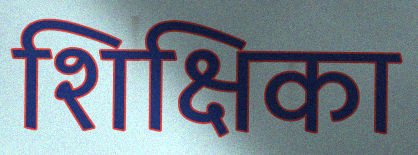
शिक्षिका